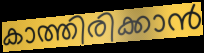
കാത്തിരിക്കാൻ